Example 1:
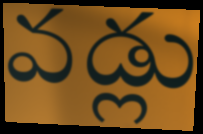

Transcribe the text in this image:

వడ్లు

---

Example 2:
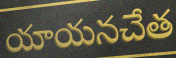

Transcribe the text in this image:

యాయనచేత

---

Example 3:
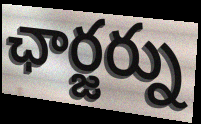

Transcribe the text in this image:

ఛార్జర్ను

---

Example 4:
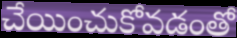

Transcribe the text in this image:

చేయించుకోవడంతో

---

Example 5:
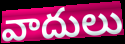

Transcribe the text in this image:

వాదులు